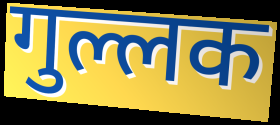
गुल्लक